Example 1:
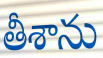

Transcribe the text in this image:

తీశాను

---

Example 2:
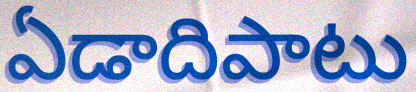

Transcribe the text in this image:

ఏడాదిపాటు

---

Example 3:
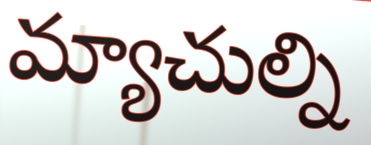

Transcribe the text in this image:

మ్యాచుల్ని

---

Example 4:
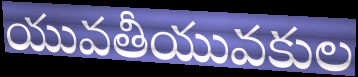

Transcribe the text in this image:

యువతీయువకుల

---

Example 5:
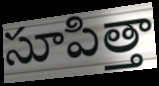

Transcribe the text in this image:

సూపిత్తా